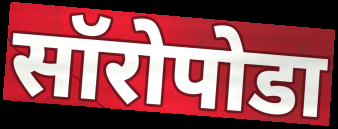
सॉरोपोडा